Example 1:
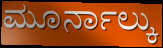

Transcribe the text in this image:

ಮೂರ್ನಾಲ್ಕು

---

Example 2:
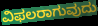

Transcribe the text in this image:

ವಿಫಲರಾಗುವುದು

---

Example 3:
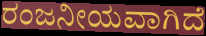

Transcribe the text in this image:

ರಂಜನೀಯವಾಗಿದೆ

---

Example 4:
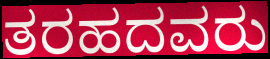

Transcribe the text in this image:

ತರಹದವರು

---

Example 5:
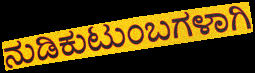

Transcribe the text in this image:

ನುಡಿಕುಟುಂಬಗಳಾಗಿ